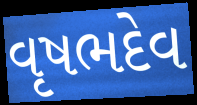
વૃષભદેવ